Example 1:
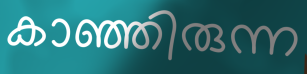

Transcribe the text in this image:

കാഞ്ഞിരുന്ന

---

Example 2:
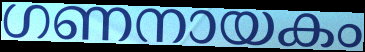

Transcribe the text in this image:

ഗണനായകം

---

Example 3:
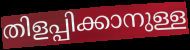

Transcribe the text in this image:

തിളപ്പിക്കാനുള്ള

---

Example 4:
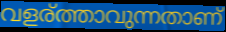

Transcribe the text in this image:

വളര്ത്താവുന്നതാണ്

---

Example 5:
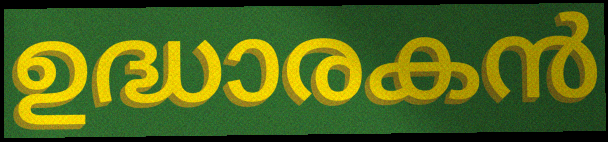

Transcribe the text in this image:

ഉദ്ധാരകൻ